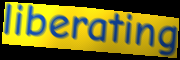
liberating